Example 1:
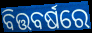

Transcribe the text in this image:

ବିତ୍ତବର୍ଷରେ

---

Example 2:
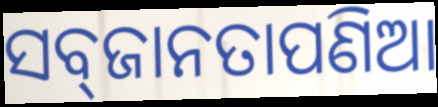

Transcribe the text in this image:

ସବ୍‌ଜାନତାପଣିଆ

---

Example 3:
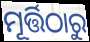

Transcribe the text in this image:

ମୂର୍ତ୍ତିଠାରୁ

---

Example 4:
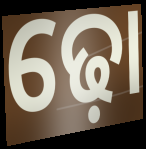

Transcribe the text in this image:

ଢ଼ୋ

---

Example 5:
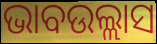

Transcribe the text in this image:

ଭାବଉଲ୍ଲାସ